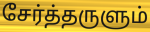
சேர்த்தருளும்